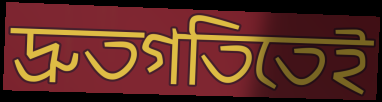
দ্রুতগতিতেই